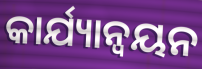
କାର୍ଯ୍ୟାନ୍ଵୟନ